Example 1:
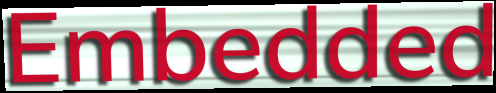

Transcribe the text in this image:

Embedded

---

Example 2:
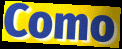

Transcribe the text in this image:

Como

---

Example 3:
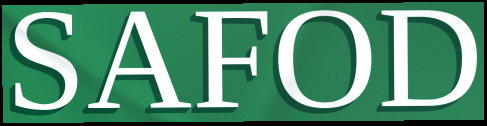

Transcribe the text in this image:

SAFOD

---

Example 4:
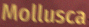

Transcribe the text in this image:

Mollusca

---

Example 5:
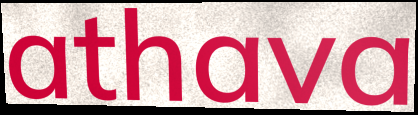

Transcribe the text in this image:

athava